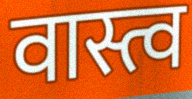
वास्त्व